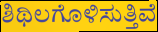
ಶಿಥಿಲಗೊಳಿಸುತ್ತಿವೆ